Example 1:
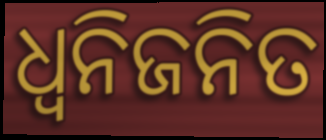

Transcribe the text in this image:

ଧ୍ଵନିଜନିତ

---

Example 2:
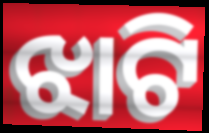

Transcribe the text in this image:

ଝାଟି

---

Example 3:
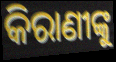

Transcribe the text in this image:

କିରାଣୀଙ୍କୁ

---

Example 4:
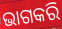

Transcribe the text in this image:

ଭାଗକରି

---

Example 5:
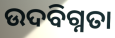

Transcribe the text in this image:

ଉଦବିଗ୍ନତା